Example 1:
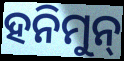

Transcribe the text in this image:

ହନିମୁନ୍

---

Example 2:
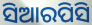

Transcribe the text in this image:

ସିଆରପିସି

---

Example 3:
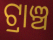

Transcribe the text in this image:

ଟ୍ରାଞ୍ଚ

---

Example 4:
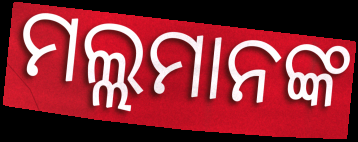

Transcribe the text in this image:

ମଲ୍ଲମାନଙ୍କ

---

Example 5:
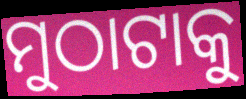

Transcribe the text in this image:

ମୁଠାଟାକୁ